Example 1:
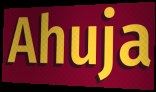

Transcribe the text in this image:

Ahuja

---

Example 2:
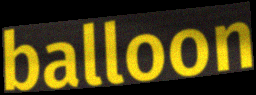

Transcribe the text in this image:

balloon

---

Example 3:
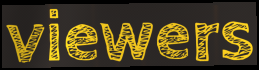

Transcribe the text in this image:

viewers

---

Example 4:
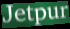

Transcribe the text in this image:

Jetpur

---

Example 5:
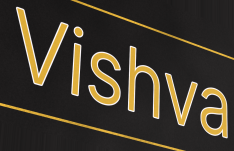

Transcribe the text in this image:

Vishva